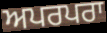
ਅਪਰਪਰਾ